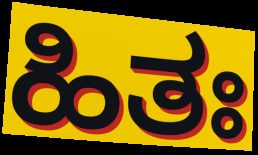
ಹಿತಃ